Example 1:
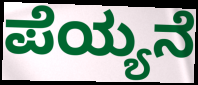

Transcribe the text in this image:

ಪೆಯ್ಯನೆ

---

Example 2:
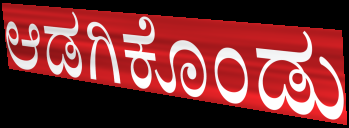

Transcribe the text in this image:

ಆಡಗಿಕೊಂಡು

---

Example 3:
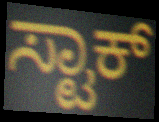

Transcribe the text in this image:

ಸ್ಟಾಕ್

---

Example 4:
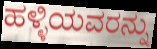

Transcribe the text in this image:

ಹಳ್ಳಿಯವರನ್ನು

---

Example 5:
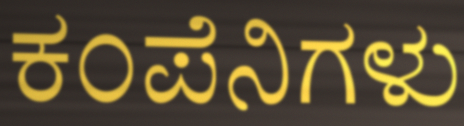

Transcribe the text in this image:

ಕಂಪೆನಿಗಳು